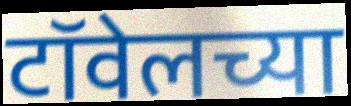
टॉवेलच्या